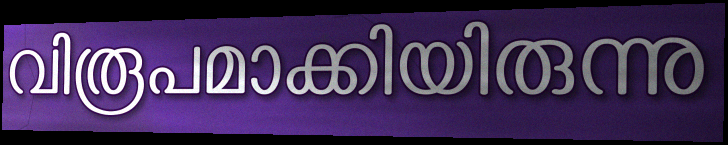
വിരൂപമാക്കിയിരുന്നു